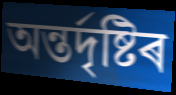
অন্তৰ্দৃষ্টিৰ